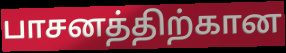
பாசனத்திற்கான